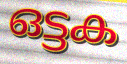
ഒട്ടക